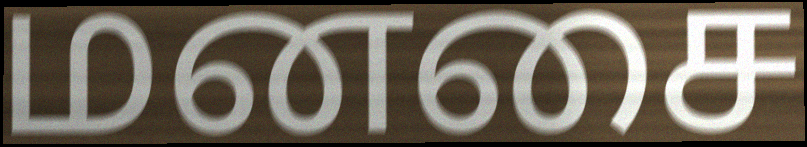
மனசை